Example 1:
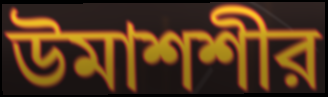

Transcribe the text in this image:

উমাশশীর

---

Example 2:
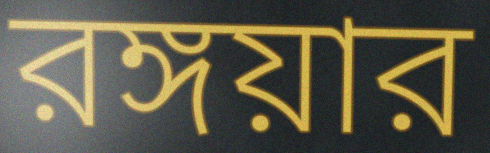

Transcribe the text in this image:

রঙ্গয়ার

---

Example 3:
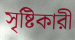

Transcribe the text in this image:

সৃষ্টিকারী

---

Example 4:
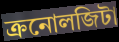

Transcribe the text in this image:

ক্রনোলজিটা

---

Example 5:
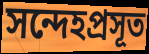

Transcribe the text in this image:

সন্দেহপ্রসূত